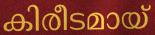
കിരീടമായ്